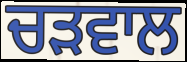
ਚੜਵਾਲ